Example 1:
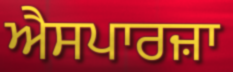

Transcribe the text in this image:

ਐਸਪਾਰਜ਼ਾ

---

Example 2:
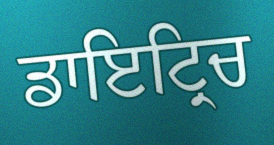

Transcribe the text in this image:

ਡਾਇਟ੍ਰਿਚ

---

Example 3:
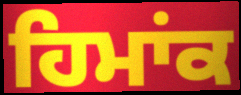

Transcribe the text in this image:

ਹਿਮਾਂਕ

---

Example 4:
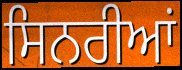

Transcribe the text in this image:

ਸਿਨਰੀਆਂ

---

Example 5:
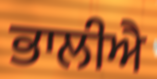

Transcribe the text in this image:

ਭਾਲੀਐ